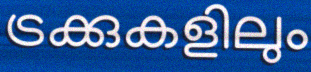
ട്രക്കുകളിലും